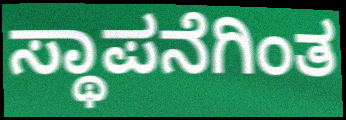
ಸ್ಥಾಪನೆಗಿಂತ